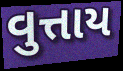
વુત્તાય